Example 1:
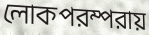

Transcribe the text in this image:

লোকপরম্পরায়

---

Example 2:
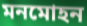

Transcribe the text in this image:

মনমোহন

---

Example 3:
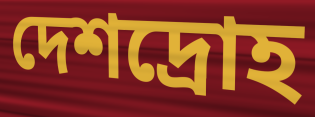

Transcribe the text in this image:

দেশদ্রোহ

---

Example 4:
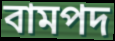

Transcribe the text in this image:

বামপদ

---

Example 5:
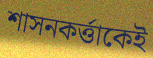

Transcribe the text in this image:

শাসনকর্ত্তাকেই